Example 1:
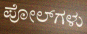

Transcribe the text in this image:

ಪೋಲ್‌ಗಳು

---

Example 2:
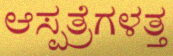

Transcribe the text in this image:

ಆಸ್ಪತ್ರೆಗಳತ್ತ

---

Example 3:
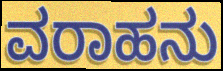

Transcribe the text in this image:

ವರಾಹನು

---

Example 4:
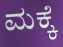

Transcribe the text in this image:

ಮಕ್ಕೆ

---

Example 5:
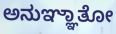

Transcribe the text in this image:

ಅನುಞ್ಞಾತೋ